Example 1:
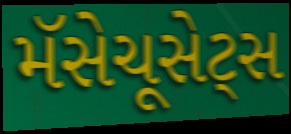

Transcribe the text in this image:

મૅસેચૂસેટ્સ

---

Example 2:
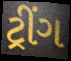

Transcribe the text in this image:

ટ્રીંગ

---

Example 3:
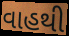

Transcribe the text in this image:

વાહથી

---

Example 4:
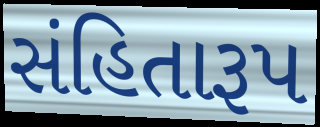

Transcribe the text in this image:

સંહિતારૂપ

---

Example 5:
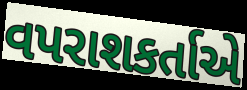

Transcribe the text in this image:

વપરાશકર્તાએ